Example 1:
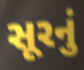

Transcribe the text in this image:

સૂરનું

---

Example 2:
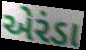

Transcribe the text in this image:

એરંડા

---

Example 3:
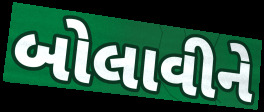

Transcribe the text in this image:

બોલાવીને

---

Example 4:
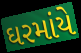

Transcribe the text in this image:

ઘરમાંયે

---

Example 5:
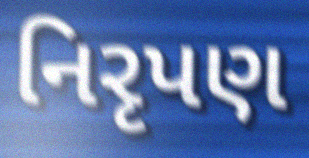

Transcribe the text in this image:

નિરૃપણ